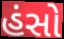
હંસો